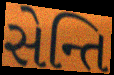
સેન્તિ